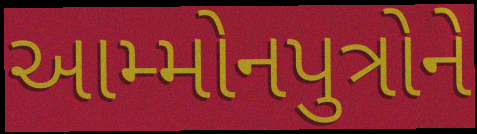
આમ્મોનપુત્રોને